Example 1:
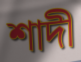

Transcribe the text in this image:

শাদী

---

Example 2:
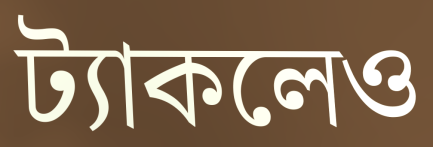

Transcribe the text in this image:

ট্যাকলেও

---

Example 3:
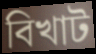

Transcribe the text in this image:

বিখাট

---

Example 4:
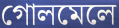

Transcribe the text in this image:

গোলমেলে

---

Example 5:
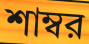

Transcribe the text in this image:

শাম্বর